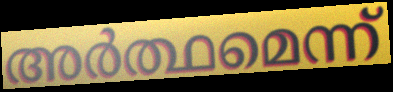
അർത്ഥമെന്ന്